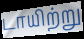
டாயிற்று